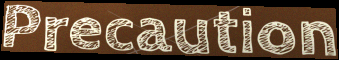
Precaution